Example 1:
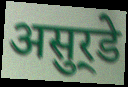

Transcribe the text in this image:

असुर्डे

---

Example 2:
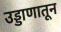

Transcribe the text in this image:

उड्डाणातून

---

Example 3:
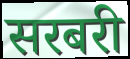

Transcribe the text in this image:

सरबरी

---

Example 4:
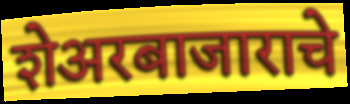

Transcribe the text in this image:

शेअरबाजाराचे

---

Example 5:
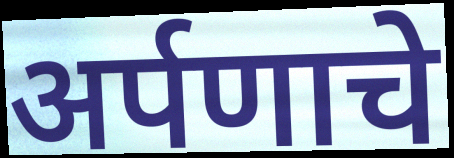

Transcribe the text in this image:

अर्पणाचे